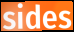
sides